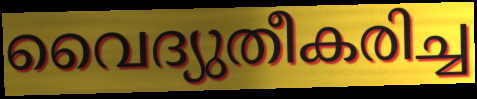
വൈദ്യുതീകരിച്ച